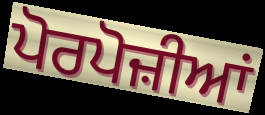
ਪੋਰਪੋਜ਼ੀਆਂ